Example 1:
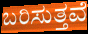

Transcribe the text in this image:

ಬರಿಸುತ್ತವೆ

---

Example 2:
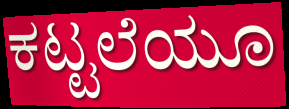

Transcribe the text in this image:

ಕಟ್ಟಲೆಯೂ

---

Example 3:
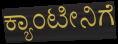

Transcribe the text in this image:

ಕ್ಯಾಂಟೀನಿಗೆ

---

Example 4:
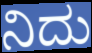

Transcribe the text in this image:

ನಿದು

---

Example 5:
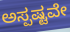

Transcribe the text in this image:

ಅಸ್ಪಷ್ಟವೇ